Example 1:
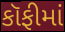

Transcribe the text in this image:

કૉફીમાં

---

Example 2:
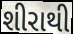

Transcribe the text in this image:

શીરાથી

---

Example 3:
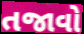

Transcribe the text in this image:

તજાવો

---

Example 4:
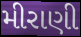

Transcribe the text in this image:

મીરાણી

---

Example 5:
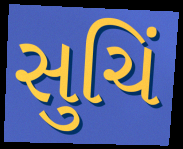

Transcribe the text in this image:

સુચિં